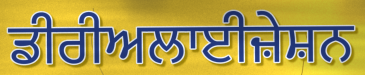
ਡੀਰੀਅਲਾਈਜ਼ੇਸ਼ਨ